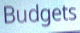
Budgets